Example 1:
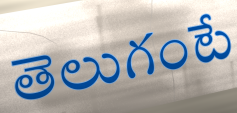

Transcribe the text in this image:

తెలుగంటే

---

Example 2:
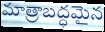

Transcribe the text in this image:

మాత్రాబద్ధమైన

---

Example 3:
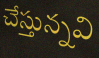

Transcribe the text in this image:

చేస్తున్నవి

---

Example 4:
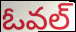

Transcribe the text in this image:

ఓవల్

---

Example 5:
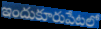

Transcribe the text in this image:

ఇందుకూరుపేటలో